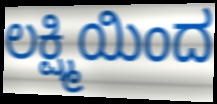
ಲಕ್ಷ್ಮಿಯಿಂದ